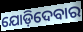
ଯୋଡ଼ିଦେବାର